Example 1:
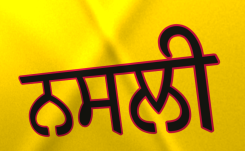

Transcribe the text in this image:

ਨਸਲੀ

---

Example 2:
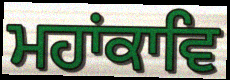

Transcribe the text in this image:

ਮਹਾਂਕਾਵਿ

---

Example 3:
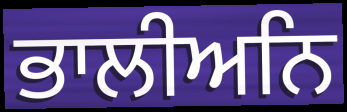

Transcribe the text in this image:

ਭਾਲੀਅਨਿ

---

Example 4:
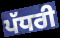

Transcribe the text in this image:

ਪੱਧਰੀ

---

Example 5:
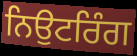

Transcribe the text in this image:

ਨਿਉਟਰਿੰਗ